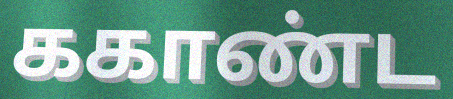
ககாண்ட